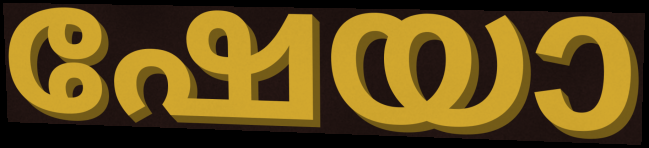
ഷേയാ